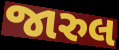
જારુલ